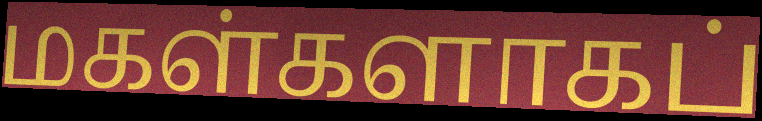
மகள்களாகப்